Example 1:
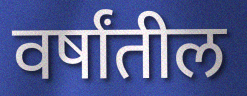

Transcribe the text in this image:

वर्षांतील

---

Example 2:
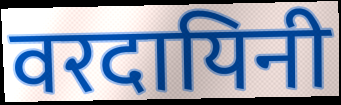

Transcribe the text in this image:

वरदायिनी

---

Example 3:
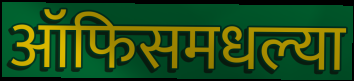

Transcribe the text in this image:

ऑफिसमधल्या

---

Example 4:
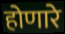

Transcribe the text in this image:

होणारे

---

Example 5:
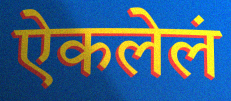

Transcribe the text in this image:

ऐकलेलं